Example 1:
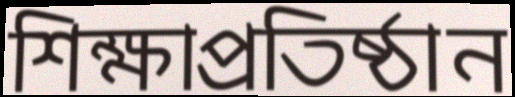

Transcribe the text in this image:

শিক্ষাপ্রতিষ্ঠান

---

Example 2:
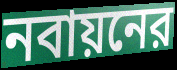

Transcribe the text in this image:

নবায়নের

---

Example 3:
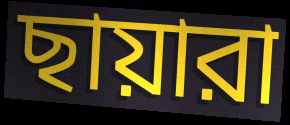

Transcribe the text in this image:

ছায়ারা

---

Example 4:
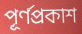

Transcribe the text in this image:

পূর্ণপ্রকাশ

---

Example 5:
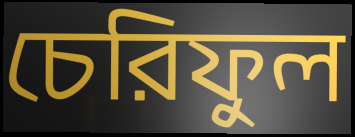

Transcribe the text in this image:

চেরিফুল